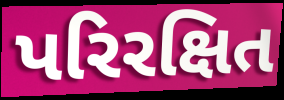
પરિરક્ષિત